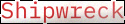
Shipwreck